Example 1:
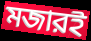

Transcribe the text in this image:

মজারই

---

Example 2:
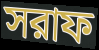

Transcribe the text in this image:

সরাফ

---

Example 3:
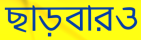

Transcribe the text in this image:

ছাড়বারও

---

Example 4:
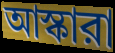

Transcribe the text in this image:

আস্কারা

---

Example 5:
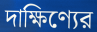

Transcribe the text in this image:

দাক্ষিণ্যের